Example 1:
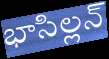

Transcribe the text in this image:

భాసిల్లన్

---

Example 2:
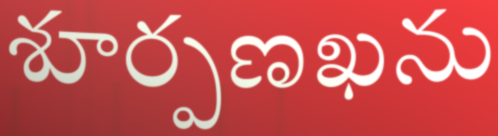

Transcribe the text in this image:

శూర్పణఖను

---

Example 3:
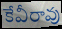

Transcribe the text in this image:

కేవీరావు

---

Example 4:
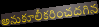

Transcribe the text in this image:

అనుకూలీకరించదగిన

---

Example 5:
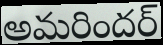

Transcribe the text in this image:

అమరిందర్